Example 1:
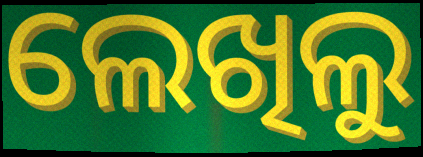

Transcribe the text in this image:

ଲେଖିଲୁ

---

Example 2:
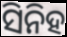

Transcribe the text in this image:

ସିନିହ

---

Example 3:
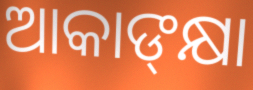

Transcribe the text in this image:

ଆକାଙ୍‍କ୍ଷା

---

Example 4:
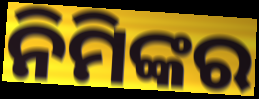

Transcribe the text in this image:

ନିମିଙ୍କର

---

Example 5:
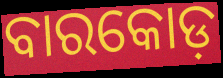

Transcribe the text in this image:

ବାରକୋଡ଼